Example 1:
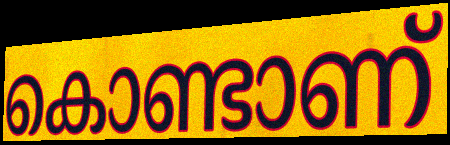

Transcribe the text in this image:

കൊണ്ടാണ്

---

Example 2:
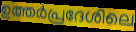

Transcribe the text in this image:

ഉത്തർപ്രദേശിലെ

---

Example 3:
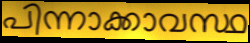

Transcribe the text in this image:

പിന്നാക്കാവസ്ഥ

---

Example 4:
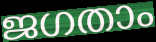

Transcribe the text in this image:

ജഗതാം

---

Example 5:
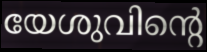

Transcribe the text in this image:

യേശുവിന്റെ